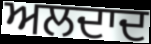
ਅਲਦਾਦ